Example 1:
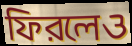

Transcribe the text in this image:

ফিরলেও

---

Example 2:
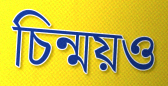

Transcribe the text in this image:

চিন্ময়ও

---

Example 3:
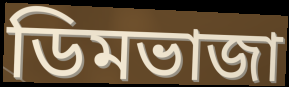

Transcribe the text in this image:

ডিমভাজা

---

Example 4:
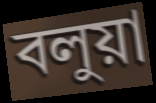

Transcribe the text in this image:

বলুয়া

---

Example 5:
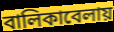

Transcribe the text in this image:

বালিকাবেলায়